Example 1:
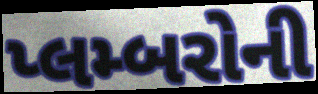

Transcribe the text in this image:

પ્લમ્બરોની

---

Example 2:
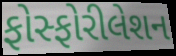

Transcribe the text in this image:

ફોસ્ફોરીલેશન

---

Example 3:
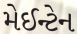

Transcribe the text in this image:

મેઈન્ટેન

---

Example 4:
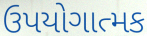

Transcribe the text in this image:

ઉપયોગાત્મક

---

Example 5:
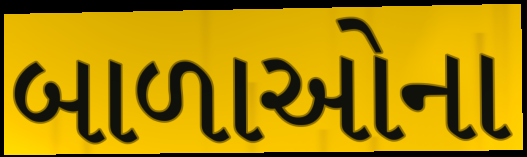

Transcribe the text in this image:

બાળાઓના